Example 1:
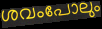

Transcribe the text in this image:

ശവംപോലും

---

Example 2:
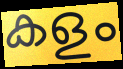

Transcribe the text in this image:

കളം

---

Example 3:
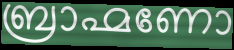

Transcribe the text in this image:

ബ്രാഹ്മണോ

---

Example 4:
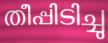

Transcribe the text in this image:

തീപ്പിടിച്ചു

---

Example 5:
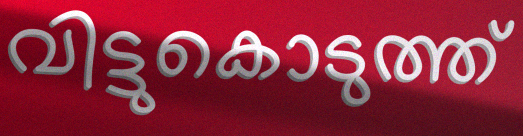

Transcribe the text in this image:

വിട്ടുകൊടുത്ത്